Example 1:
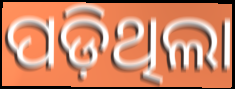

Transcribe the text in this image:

ପଡ଼ିଥିଲା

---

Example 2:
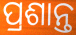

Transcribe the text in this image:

ପ୍ରଶାନ୍ତ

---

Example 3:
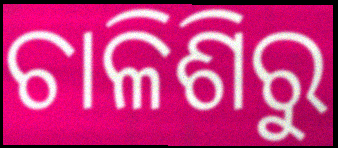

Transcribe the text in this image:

ଚାଳିଶିରୁ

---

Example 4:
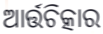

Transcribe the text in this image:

ଆର୍ତ୍ତଚିତ୍କାର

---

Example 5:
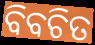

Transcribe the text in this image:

ବିବଚିତ